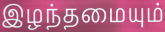
இழந்தமையும்